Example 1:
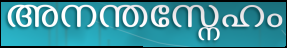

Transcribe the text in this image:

അനന്തസ്നേഹം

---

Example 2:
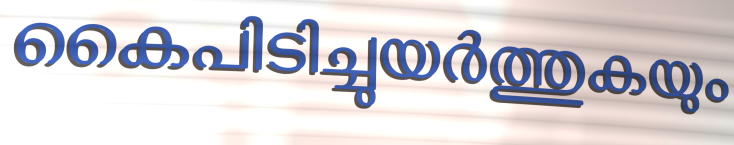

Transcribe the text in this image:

കൈപിടിച്ചുയർത്തുകയും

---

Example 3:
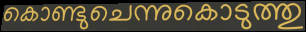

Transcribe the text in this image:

കൊണ്ടുചെന്നുകൊടുത്തു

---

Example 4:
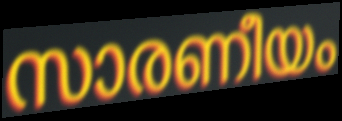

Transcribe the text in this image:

സാരണീയം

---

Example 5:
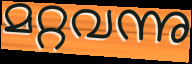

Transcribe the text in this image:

മറ്റവന്നു